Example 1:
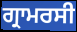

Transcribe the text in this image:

ਗ੍ਰਾਮਰਸੀ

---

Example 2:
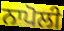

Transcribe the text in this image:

ਨਾਪੋਲੀ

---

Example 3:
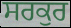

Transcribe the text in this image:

ਸਰਕੁਰ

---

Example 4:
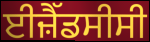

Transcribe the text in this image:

ਈਜ਼ੈੱਡਸੀਸੀ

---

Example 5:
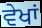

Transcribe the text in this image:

ਵੇਖਾਂ